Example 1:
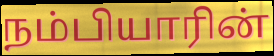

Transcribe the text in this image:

நம்பியாரின்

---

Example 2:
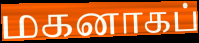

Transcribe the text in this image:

மகனாகப்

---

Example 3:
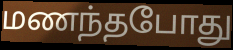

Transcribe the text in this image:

மணந்தபோது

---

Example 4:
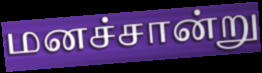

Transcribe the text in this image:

மனச்சான்று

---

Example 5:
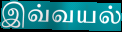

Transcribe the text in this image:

இவ்வயல்